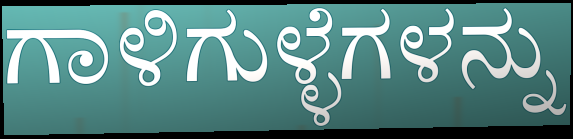
ಗಾಳಿಗುಳ್ಳೆಗಳನ್ನು